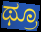
ಥ್ರೂ